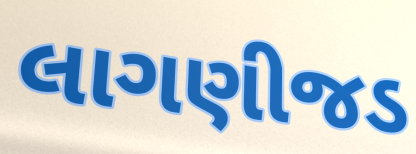
લાગણીજડ